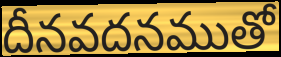
దీనవదనముతో